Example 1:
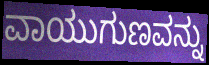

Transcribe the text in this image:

ವಾಯುಗುಣವನ್ನು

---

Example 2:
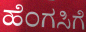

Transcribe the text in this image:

ಹೆಂಗಸಿಗೆ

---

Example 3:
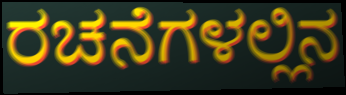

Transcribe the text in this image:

ರಚನೆಗಳಲ್ಲಿನ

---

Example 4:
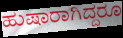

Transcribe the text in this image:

ಹುಷಾರಾಗಿದ್ದರೂ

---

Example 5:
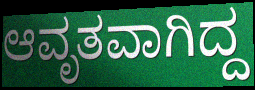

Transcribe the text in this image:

ಆವೃತವಾಗಿದ್ದ